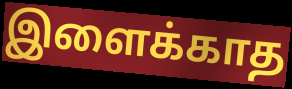
இளைக்காத